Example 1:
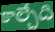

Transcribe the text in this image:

కాల్చేది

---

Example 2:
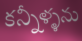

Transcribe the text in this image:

కన్నీళ్ళను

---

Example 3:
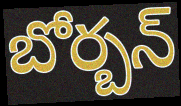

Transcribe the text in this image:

బోర్బన్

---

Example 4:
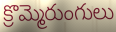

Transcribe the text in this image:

క్రొమ్మెరుంగులు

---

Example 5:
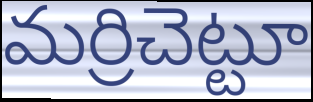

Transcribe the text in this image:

మర్రిచెట్టూ